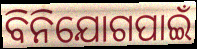
ବିନିଯୋଗପାଇଁ